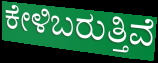
ಕೇಳಿಬರುತ್ತಿವೆ